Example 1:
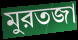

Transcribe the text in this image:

মুরতজা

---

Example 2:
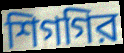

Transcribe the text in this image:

শিগগির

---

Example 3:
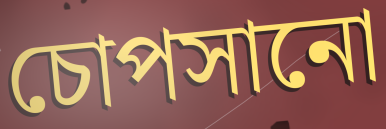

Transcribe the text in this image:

চোপসানো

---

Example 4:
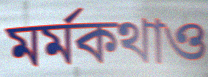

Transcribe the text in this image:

মর্মকথাও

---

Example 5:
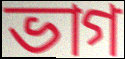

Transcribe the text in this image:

ভাগ